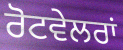
ਰੋਟਵੇਲਰਾਂ